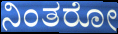
ನಿಂತರೋ